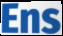
Ens